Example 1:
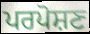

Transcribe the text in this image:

ਪਰਪੋਸ਼ਣ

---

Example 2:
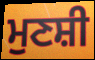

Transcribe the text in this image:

ਮੁਣਸ਼ੀ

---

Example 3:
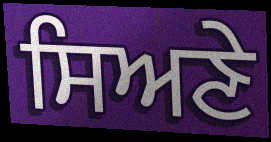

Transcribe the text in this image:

ਸਿਅਣੇ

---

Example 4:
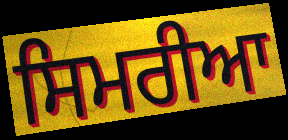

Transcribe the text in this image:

ਸਿਮਰੀਆ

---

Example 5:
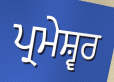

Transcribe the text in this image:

ਪ੍ਰਮੇਸ਼੍ਵਰ